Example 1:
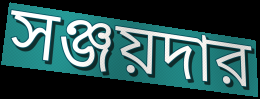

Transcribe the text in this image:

সঞ্জয়দার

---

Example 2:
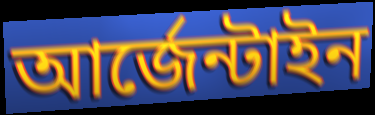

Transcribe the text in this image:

আর্জেন্টাইন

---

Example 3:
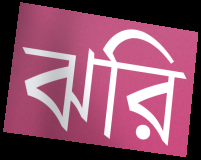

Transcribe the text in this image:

ঝরি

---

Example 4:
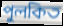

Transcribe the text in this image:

পুলকিত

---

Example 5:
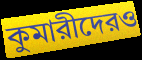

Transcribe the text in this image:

কুমারীদেরও